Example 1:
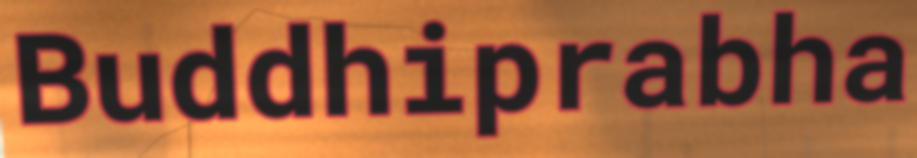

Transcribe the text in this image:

Buddhiprabha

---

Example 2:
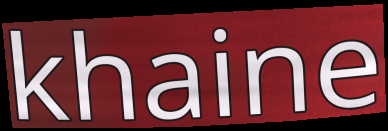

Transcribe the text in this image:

khaine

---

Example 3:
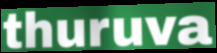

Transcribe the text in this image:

thuruva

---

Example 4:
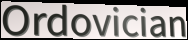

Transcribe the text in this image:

Ordovician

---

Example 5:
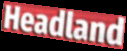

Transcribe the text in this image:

Headland